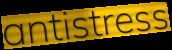
antistress